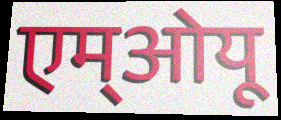
एम्ओयू